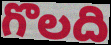
గొలది